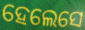
ହେଲେସେ